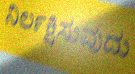
ನಿರ್ಲಕ್ಷಿಸುವುದು